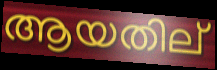
ആയതില്